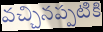
వచ్చినప్పటికి